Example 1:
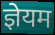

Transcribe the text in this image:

ज्ञेयम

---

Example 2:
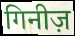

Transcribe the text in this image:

गिनीज़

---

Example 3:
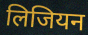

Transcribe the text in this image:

लिजियन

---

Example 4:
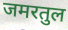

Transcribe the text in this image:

जमरतुल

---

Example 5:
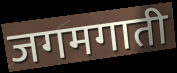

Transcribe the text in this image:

जगमगाती